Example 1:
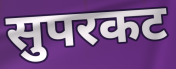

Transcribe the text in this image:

सुपरकट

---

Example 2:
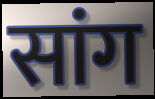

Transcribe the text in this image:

सांग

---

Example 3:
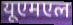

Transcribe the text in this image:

यूएमएल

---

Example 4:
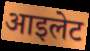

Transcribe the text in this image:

आइलेट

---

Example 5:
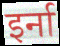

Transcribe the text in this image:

इर्ना